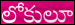
లోకులూ